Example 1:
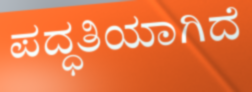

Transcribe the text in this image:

ಪದ್ಧತಿಯಾಗಿದೆ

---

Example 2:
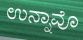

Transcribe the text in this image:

ಉನ್ನಾವೊ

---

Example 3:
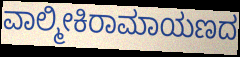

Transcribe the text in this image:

ವಾಲ್ಮೀಕಿರಾಮಾಯಣದ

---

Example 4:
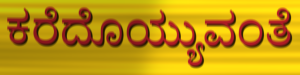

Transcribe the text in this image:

ಕರೆದೊಯ್ಯುವಂತೆ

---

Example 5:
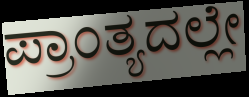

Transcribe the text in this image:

ಪ್ರಾಂತ್ಯದಲ್ಲೇ